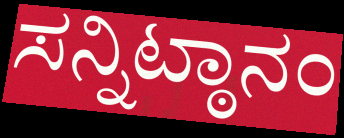
ಸನ್ನಿಟ್ಠಾನಂ